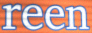
reen